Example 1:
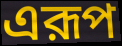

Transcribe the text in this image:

এরূপ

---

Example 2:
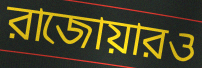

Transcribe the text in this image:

রাজোয়ারও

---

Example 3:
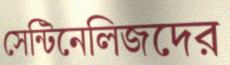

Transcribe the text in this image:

সেন্টিনেলিজদের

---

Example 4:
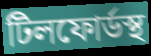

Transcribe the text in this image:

টিলফোর্ডস্থ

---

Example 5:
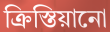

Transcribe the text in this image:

ক্রিস্তিয়ানো